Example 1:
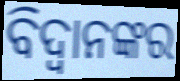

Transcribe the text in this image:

ବିଦ୍ୱାନଙ୍କର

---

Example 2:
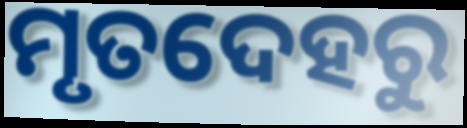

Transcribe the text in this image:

ମୃତଦେହରୁ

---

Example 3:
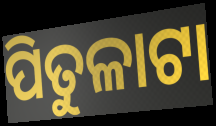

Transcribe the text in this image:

ପିତୁଳାଟା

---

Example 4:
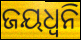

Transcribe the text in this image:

ଜୟଧ୍ଵନି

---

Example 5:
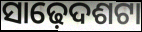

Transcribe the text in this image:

ସାଢ଼େଦଶଟା